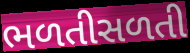
ભળતીસળતી